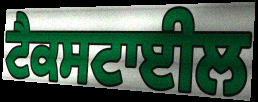
ਟੈਕਸਟਾਈਲ